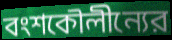
বংশকৌলীন্যের